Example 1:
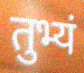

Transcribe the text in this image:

तुभ्यं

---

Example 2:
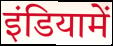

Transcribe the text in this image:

इंडियामें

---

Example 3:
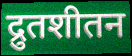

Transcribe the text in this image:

द्रुतशीतन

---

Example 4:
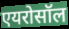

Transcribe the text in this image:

एयरोसॉल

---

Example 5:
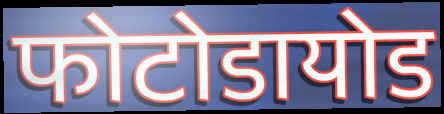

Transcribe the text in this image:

फोटोडायोड